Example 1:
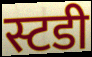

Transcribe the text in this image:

स्टडी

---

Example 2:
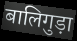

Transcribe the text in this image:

बालिगुड़ा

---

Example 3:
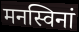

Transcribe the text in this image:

मनस्विनां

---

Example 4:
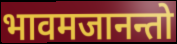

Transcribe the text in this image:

भावमजानन्तो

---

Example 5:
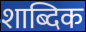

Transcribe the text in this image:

शाब्दिक